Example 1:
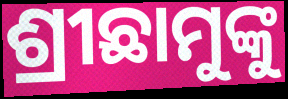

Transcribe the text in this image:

ଶ୍ରୀଛାମୁଙ୍କୁ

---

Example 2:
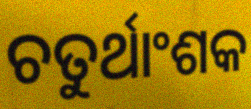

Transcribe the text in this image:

ଚତୁର୍ଥାଂଶକ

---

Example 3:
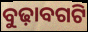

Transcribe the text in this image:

ବୁଢ଼ାବଗଟି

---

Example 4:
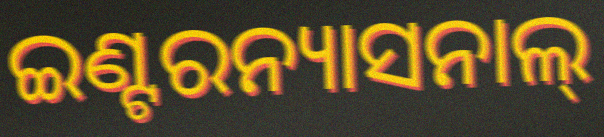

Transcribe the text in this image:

ଇଣ୍ଟରନ୍ୟାସନାଲ୍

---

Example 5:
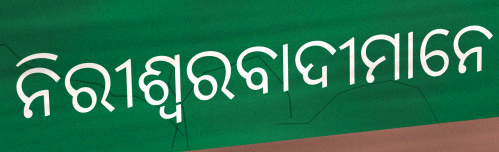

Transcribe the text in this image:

ନିରୀଶ୍ବରବାଦୀମାନେ